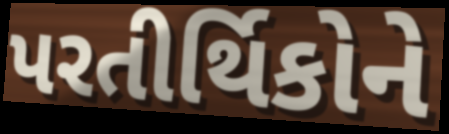
પરતીર્થિકોને